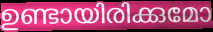
ഉണ്ടായിരിക്കുമോ